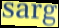
sarg